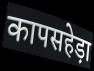
कापसहेड़ा